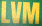
LVM